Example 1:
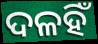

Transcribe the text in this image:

ଦଳହିଁ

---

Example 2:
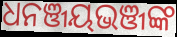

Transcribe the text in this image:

ଧନଞ୍ଜୟଭଞ୍ଜଙ୍କ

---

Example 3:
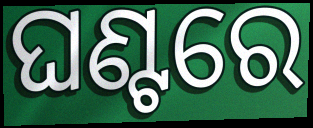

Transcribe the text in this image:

ଘଣ୍ଟରେ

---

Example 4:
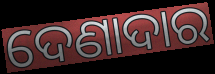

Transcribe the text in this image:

ଦେଣାଦାର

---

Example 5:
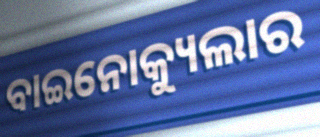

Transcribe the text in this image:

ବାଇନୋକ୍ୟୁଲାର